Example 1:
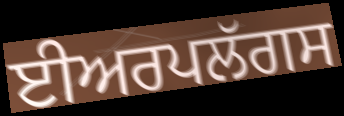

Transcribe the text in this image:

ਈਅਰਪਲੱਗਸ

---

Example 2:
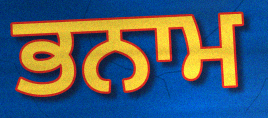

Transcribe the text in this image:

ਭਨਾਮ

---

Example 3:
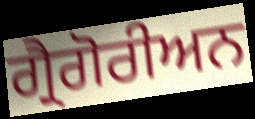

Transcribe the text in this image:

ਗ੍ਰੈਗੋਰੀਅਨ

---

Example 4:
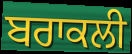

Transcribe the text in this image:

ਬਰਾਕਲੀ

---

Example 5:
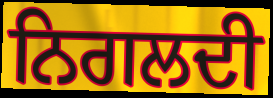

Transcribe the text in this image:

ਨਿਗਲਦੀ